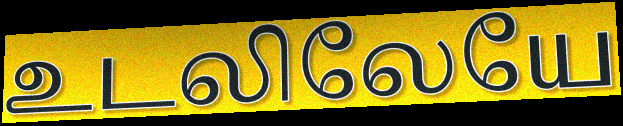
உடலிலேயே